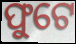
ଫୁଟେ